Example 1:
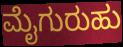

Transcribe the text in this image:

ಮೈಗುರುಹು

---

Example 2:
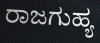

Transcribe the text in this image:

ರಾಜಗುಹ್ಯ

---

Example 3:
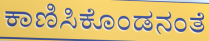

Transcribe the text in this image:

ಕಾಣಿಸಿಕೊಂಡನಂತೆ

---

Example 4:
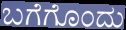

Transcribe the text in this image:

ಬಗೆಗೊಂದು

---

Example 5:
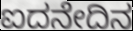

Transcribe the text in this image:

ಐದನೇದಿನ